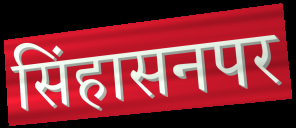
सिंहासनपर